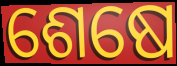
ଶେଷେ